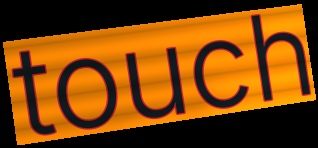
touch